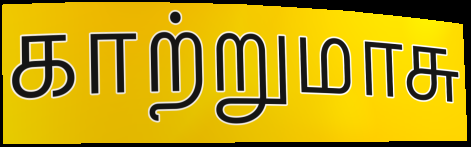
காற்றுமாசு